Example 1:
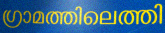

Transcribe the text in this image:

ഗ്രാമത്തിലെത്തി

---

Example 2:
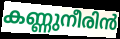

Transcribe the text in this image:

കണ്ണുനീരിൻ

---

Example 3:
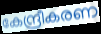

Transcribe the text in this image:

കേന്ദ്രീകരണ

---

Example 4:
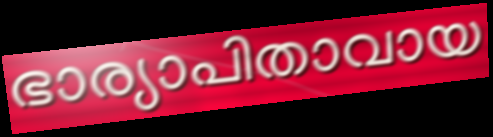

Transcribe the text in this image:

ഭാര്യാപിതാവായ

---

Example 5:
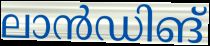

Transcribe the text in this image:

ലാൻഡിങ്